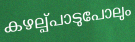
കഴല്പ്പാടുപോലും